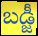
బడ్జీ